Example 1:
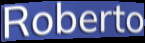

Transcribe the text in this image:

Roberto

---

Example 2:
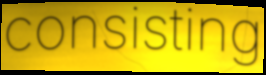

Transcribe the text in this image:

consisting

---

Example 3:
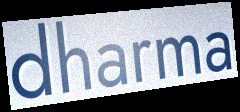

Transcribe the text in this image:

dharma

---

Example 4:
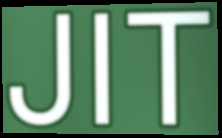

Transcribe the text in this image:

JIT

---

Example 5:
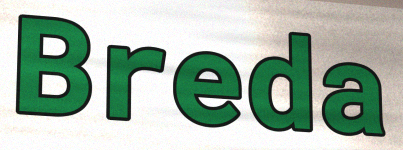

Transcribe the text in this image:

Breda